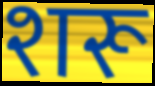
शरू